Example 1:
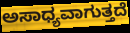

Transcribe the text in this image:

ಅಸಾಧ್ಯವಾಗುತ್ತದೆ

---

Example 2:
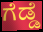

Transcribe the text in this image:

ಗೆಡ್ಡೆ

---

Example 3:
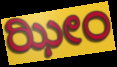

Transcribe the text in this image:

ಝೀಂ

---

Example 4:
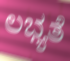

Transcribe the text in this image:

ಲಭ್ಯತೆ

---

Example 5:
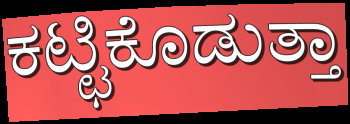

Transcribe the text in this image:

ಕಟ್ಟಿಕೊಡುತ್ತಾ